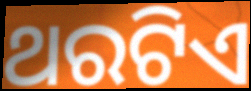
ଥରଟିଏ